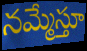
నమ్మేస్తూ